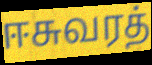
ஈசுவரத்